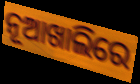
ନୂଆଖାଲିରେ